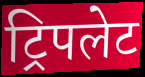
ट्रिपलेट